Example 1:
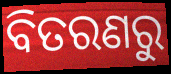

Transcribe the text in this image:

ବିତରଣରୁ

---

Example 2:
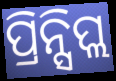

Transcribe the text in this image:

ପ୍ରିନ୍ସିପ୍ଲ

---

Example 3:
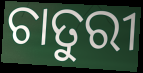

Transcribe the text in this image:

ଚାତୁରୀ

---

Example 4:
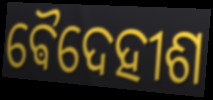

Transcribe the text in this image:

ଵୈଦେହୀଶ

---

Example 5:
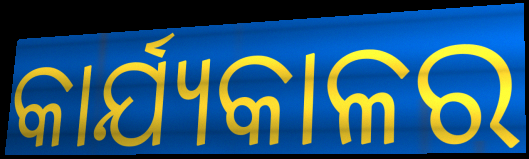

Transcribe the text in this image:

କାର୍ଯ୍ୟକାଳର